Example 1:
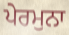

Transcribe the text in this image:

ਪੇਰਮੁਨਾ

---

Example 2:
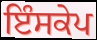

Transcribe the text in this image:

ਇੰਸਕੇਪ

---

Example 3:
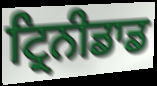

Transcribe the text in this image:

ਟ੍ਰਿਨੀਡਾਡ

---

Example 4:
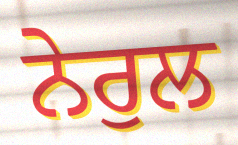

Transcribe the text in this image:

ਨੇਰੁਲ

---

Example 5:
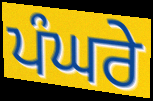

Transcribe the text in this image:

ਪੰਘਰੇ